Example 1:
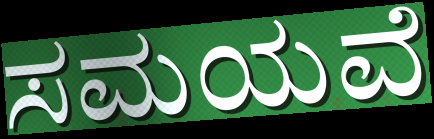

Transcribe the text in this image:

ಸಮಯವೆ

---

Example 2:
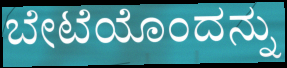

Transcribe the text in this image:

ಬೇಟೆಯೊಂದನ್ನು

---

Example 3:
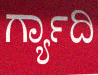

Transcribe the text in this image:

ರ್ಗ್ಯಾದಿ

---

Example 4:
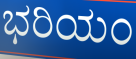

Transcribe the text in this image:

ಭರಿಯಂ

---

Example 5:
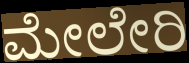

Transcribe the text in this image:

ಮೇಲೇರಿ